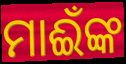
ମାଈଁଙ୍କ